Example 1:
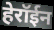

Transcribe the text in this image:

हेरॉईन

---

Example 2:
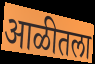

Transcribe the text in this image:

आळीतला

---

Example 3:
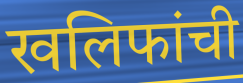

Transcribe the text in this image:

खलिफांची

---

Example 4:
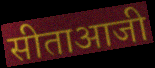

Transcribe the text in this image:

सीताआजी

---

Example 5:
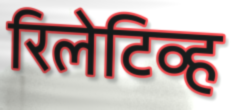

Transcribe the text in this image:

रिलेटिव्ह